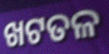
ଖଟତଳ